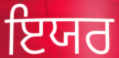
ਇਯਰ